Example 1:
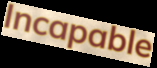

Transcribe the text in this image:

Incapable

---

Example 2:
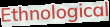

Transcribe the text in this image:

Ethnological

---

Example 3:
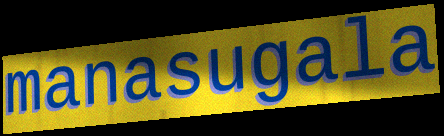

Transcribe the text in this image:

manasugala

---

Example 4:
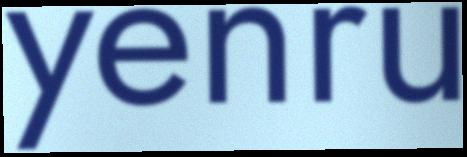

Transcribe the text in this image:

yenru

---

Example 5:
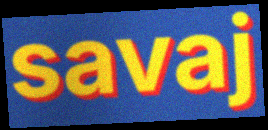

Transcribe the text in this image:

savaj